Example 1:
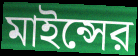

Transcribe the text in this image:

মাইন্সের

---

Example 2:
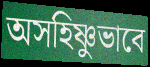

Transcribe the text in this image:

অসহিষ্ণুভাবে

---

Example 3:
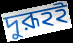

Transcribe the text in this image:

দুরূহই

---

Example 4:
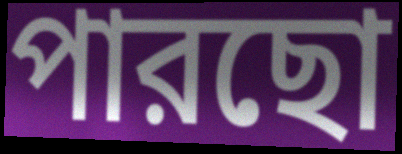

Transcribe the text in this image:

পারছো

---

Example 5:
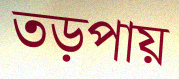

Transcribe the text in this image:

তড়পায়